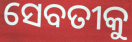
ସେବତୀକୁ